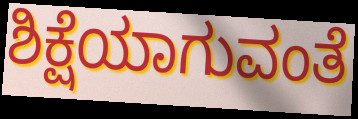
ಶಿಕ್ಷೆಯಾಗುವಂತೆ